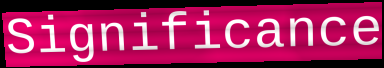
Significance